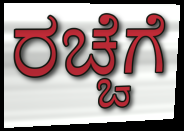
ರಚ್ಚೆಗೆ